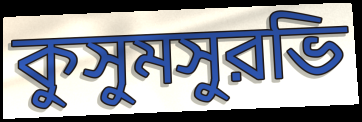
কুসুমসুরভি